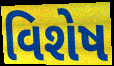
વિશેષ